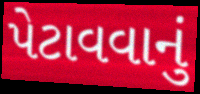
પેટાવવાનું